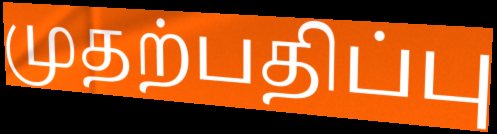
முதற்பதிப்பு